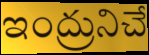
ఇంద్రునిచే